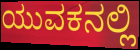
ಯುವಕನಲ್ಲಿ